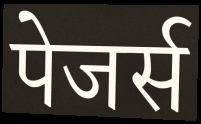
पेजर्स